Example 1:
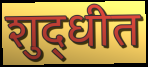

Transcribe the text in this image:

शुद्धीत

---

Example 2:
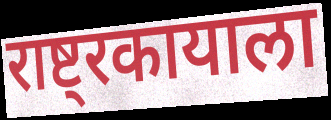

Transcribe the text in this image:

राष्ट्रकायाला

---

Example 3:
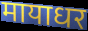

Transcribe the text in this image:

मायाधर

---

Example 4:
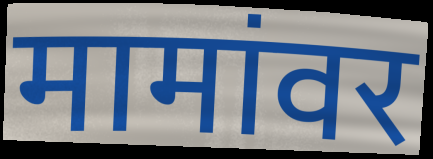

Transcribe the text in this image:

मामांवर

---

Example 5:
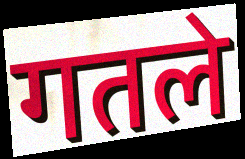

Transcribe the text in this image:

गतले